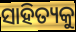
ସାହିତ୍ୟକୁ